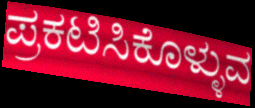
ಪ್ರಕಟಿಸಿಕೊಳ್ಳುವ